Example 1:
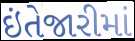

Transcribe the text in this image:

ઇંતેજારીમાં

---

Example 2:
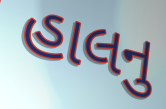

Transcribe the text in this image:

હાલનુ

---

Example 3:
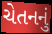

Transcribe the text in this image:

ચેતનનું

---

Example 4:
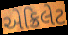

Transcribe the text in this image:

એક્રિલેટ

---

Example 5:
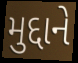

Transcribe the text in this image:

મુદ્દાને